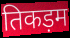
तिकड़म